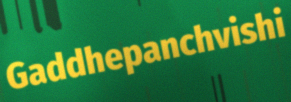
Gaddhepanchvishi